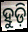
ହୁଡ଼ି